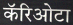
कॅरिओटा